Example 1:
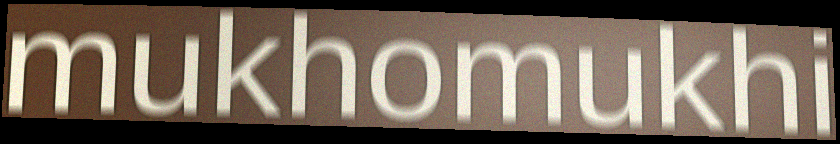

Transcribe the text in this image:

mukhomukhi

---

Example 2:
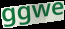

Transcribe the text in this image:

ggwe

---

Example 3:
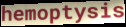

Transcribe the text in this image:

hemoptysis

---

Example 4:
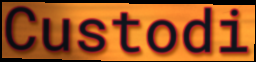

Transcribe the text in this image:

Custodi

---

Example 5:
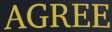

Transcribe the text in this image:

AGREE